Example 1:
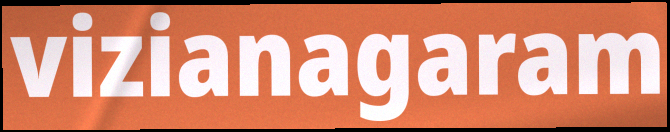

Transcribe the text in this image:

vizianagaram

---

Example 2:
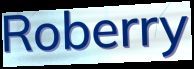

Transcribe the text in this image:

Roberry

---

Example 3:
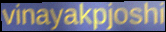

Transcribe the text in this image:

vinayakpjoshi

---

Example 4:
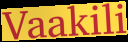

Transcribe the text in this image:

Vaakili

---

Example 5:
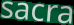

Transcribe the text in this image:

sacra